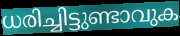
ധരിച്ചിട്ടുണ്ടാവുക